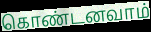
கொண்டனவாம்